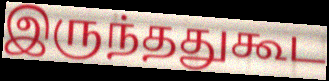
இருந்ததுகூட